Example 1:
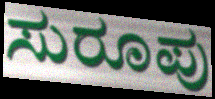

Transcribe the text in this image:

ಸುರೂಪು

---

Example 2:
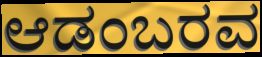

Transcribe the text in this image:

ಆಡಂಬರವ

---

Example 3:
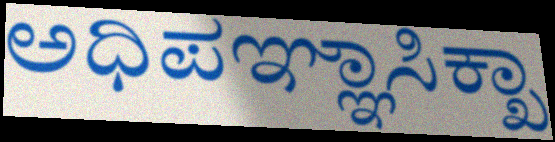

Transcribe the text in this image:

ಅಧಿಪಞ್ಞಾಸಿಕ್ಖಾ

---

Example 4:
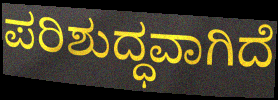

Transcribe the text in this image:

ಪರಿಶುದ್ಧವಾಗಿದೆ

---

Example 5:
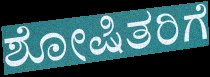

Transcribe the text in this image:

ಶೋಷಿತರಿಗೆ